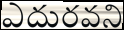
ఎదురవని